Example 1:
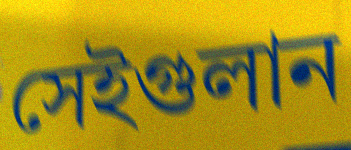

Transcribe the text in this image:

সেইগুলান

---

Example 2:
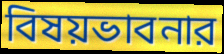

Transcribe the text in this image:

বিষয়ভাবনার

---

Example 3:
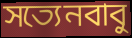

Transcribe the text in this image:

সত্যেনবাবু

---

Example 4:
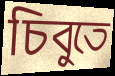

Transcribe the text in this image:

চিবুতে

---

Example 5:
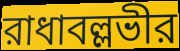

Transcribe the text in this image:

রাধাবল্লভীর